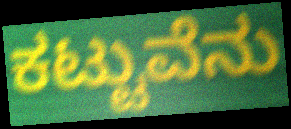
ಕಟ್ಟುವೆನು